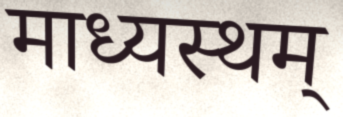
माध्यस्थम्